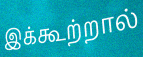
இக்கூற்றால்